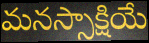
మనస్సాక్షియే